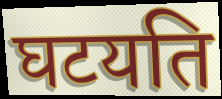
घटयति